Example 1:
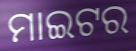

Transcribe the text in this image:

ମାଇଟର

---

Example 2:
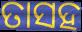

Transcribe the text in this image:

ତାସହ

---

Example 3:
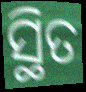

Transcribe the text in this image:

ସ୍ଥିତ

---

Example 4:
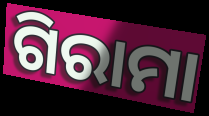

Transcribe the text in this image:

ଗିରାମା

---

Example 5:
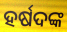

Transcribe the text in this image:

ହର୍ଷଦଙ୍କ